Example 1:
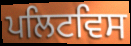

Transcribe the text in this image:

ਪਲਿਟਵਿਸ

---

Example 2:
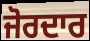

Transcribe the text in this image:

ਜੋਰਦਾਰ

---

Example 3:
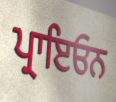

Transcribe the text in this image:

ਪ੍ਰਾਇਓਨ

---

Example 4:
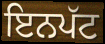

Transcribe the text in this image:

ਇਨਪੱਟ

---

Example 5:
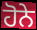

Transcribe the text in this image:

ਹੋਨੇ